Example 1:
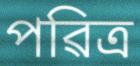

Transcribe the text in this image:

পৱিত্ৰ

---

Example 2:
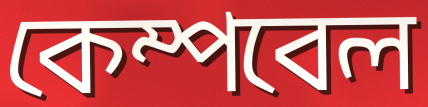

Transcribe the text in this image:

কেম্পবেল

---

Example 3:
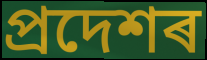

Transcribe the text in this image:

প্ৰদেশৰ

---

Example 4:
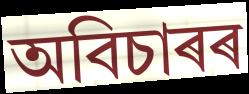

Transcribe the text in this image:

অবিচাৰৰ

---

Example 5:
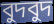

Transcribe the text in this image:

বুদবুদ